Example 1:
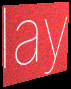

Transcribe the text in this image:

lay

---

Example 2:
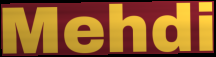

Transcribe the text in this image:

Mehdi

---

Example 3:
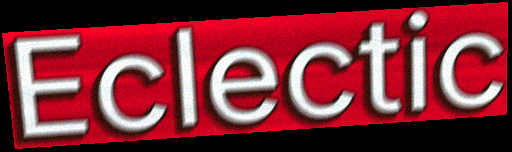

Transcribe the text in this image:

Eclectic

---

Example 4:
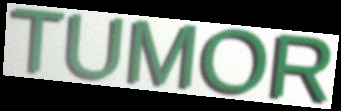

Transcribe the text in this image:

TUMOR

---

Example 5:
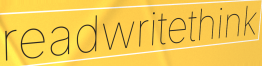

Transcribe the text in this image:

readwritethink